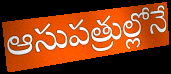
ఆసుపత్రుల్లోనే